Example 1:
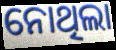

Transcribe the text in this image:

ନୋଥିଲା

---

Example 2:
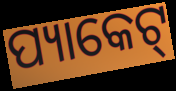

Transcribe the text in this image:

ପ୍ୟାକେଟ୍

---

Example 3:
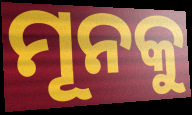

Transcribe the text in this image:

ମୂନକୁ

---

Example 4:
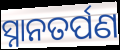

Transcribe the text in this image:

ସ୍ନାନତର୍ପଣ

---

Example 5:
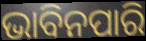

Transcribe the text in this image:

ଭାବିନପାରି